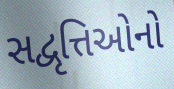
સદ્વૃત્તિઓનો